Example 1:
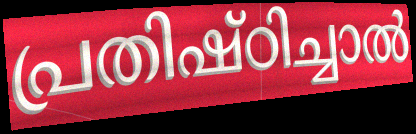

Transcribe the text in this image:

പ്രതിഷ്ഠിച്ചാൽ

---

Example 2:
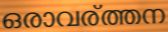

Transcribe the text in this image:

ഒരാവര്ത്തന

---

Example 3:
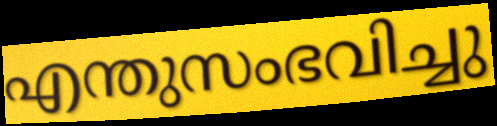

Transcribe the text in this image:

എന്തുസംഭവിച്ചു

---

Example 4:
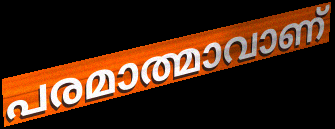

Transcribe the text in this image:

പരമാത്മാവാണ്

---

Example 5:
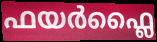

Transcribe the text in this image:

ഫയർഫ്ലൈ